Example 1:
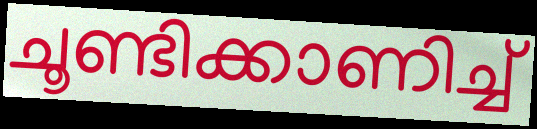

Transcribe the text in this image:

ചൂണ്ടിക്കാണിച്ച്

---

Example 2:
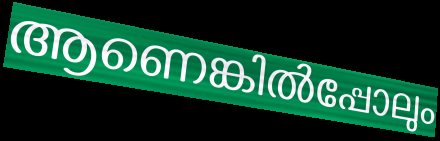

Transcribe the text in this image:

ആണെങ്കിൽപ്പോലും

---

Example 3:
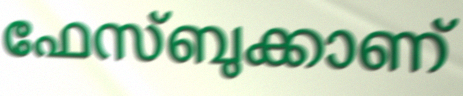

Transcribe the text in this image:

ഫേസ്ബുക്കാണ്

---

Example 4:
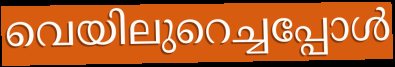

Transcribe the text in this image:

വെയിലുറെച്ചപ്പോൾ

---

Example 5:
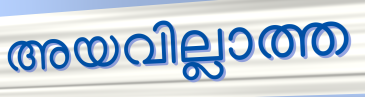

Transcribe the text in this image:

അയവില്ലാത്ത